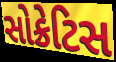
સોક્રેટિસ